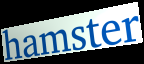
hamster